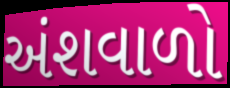
અંશવાળો